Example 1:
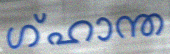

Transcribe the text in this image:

ഗ്ഹാന്ത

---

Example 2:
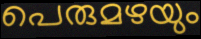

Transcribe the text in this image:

പെരുമഴയും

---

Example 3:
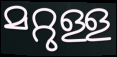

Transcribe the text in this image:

മറ്റുള്ള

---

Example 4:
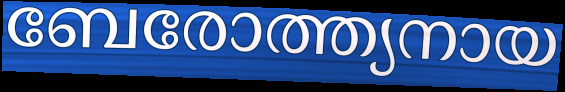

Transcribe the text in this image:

ബേരോത്ത്യനായ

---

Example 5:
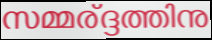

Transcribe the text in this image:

സമ്മര്ദ്ദത്തിനു